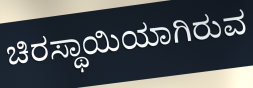
ಚಿರಸ್ಥಾಯಿಯಾಗಿರುವ